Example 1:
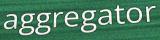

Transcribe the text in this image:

aggregator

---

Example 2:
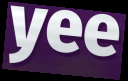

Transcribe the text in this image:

yee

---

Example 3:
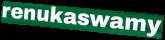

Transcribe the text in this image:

renukaswamy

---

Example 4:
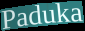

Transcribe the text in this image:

Paduka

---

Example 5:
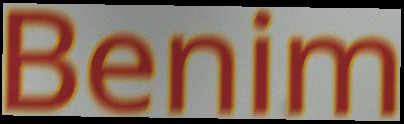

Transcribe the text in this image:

Benim